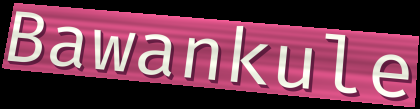
Bawankule